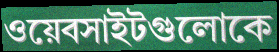
ওয়েবসাইটগুলোকে